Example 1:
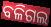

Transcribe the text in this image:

ବଳିଗଲ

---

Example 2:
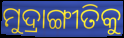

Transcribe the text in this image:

ମୁଦ୍ରାଙ୍ଗୀତିକୁ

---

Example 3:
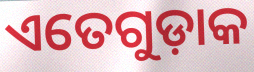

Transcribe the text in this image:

ଏତେଗୁଡ଼ାକ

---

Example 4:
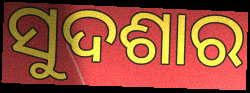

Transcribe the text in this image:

ସୁଦଶାର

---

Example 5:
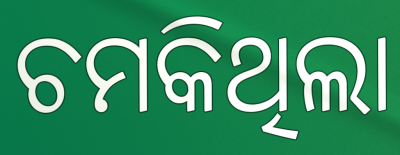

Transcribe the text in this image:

ଚମକିଥିଲା